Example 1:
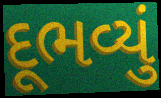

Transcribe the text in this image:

દૂભવ્યું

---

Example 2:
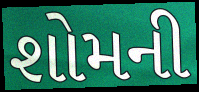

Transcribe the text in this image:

શોમની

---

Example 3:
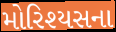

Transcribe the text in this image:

મોરિશ્યસના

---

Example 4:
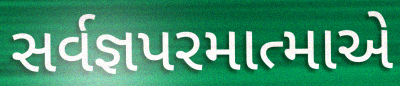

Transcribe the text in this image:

સર્વજ્ઞપરમાત્માએ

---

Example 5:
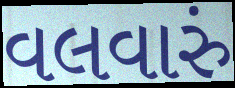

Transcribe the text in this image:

વલવારું